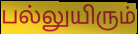
பல்லுயிரும்